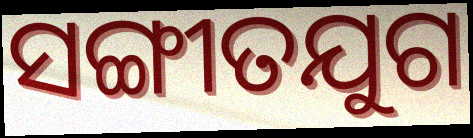
ସଙ୍ଗୀତଯୁଗ